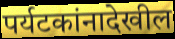
पर्यटकांनादेखील